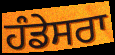
ਹੰਡੇਸਰਾ